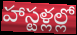
హాస్టళ్లల్లో